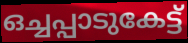
ഒച്ചപ്പാടുകേട്ട്